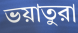
ভয়াতুরা